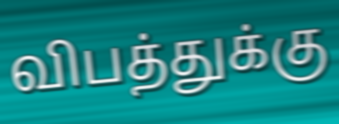
விபத்துக்கு